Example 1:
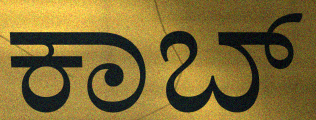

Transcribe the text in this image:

ಕಾಬ್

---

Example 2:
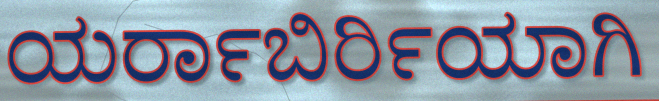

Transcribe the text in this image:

ಯರ್ರಾಬಿರ್ರಿಯಾಗಿ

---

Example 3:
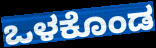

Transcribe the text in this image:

ಒಳಕೊಂಡ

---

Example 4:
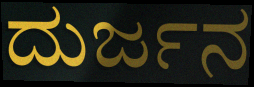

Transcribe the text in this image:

ದುರ್ಜನ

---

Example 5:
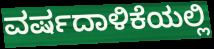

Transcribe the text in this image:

ವರ್ಷದಾಳಿಕೆಯಲ್ಲಿ